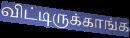
விட்டிருக்காங்க